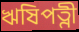
ঋষিপত্নী